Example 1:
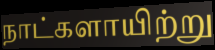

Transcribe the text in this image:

நாட்களாயிற்று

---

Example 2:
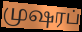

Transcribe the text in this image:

முஷரப்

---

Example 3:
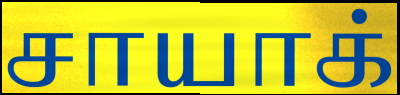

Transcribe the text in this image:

சாயாக்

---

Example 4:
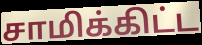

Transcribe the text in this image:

சாமிக்கிட்ட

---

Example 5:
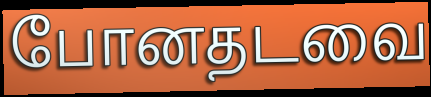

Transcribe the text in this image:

போனதடவை